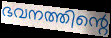
ഭവനത്തിന്റെ